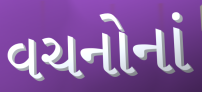
વચનોનાં